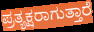
ಪ್ರತ್ಯಕ್ಷರಾಗುತ್ತಾರೆ